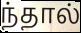
ந்தால்